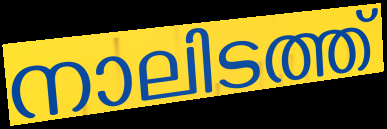
നാലിടത്ത്